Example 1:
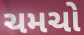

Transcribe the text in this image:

ચમચો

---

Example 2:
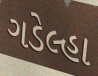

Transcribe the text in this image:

ગડેલ્હા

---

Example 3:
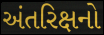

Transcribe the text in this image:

અંતરિક્ષનો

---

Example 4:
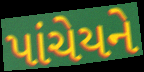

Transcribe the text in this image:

પાંચેયને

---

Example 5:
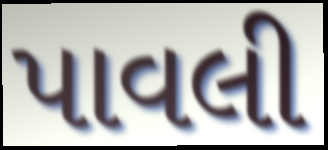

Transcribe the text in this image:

પાવલી